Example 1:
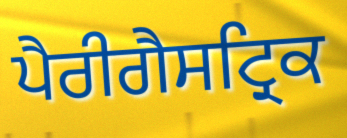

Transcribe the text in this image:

ਪੈਰੀਗੈਸਟ੍ਰਿਕ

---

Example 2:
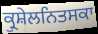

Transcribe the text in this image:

ਕ੍ਰੁਸ਼ੇਲਨਿਤਸਕਾ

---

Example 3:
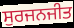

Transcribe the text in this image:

ਸੁਰਜਨਜੀਤ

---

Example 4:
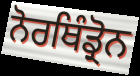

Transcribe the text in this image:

ਨੋਰਥਿੰਡ੍ਰੋਨ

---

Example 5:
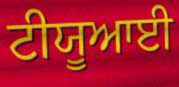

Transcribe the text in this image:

ਟੀਯੂਆਈ